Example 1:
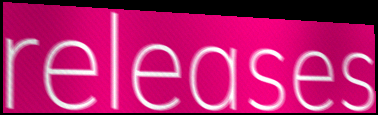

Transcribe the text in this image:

releases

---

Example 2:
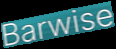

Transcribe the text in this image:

Barwise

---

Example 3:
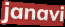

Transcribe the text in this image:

janavi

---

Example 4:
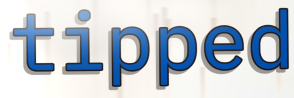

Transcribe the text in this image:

tipped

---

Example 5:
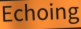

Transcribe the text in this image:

Echoing